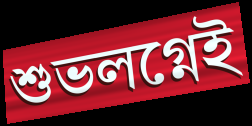
শুভলগ্নেই